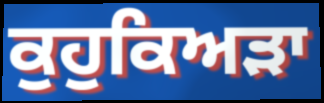
ਕੁਹੁਕਿਅੜਾ